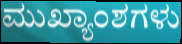
ಮುಖ್ಯಾಂಶಗಳು